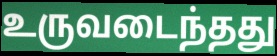
உருவடைந்தது